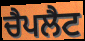
ਚੈਪਲੈਟ